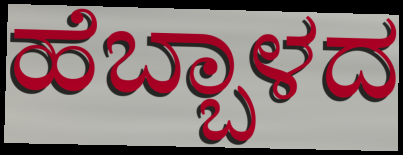
ಹೆಬ್ಬಾಳದ